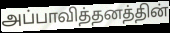
அப்பாவித்தனத்தின்